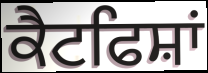
ਕੈਟਫਿਸ਼ਾਂ